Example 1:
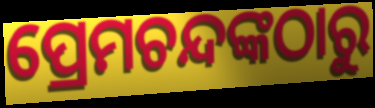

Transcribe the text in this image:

ପ୍ରେମଚନ୍ଦଙ୍କଠାରୁ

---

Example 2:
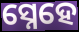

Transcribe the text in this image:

ସ୍ନେହେ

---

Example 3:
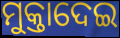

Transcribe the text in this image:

ମୁକ୍ତାଦେଇ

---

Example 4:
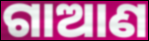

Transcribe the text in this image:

ଗାଆଣ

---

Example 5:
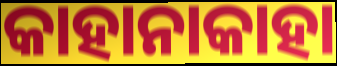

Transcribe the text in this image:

କାହାନାକାହା